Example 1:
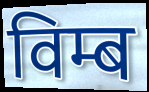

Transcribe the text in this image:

विम्ब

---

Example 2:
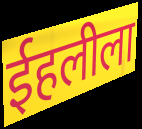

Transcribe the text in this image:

ईहलीला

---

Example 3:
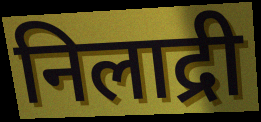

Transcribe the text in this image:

निलाद्री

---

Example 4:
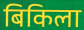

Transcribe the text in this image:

बिकिला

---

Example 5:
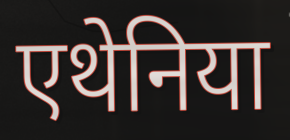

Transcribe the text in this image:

एथेनिया